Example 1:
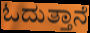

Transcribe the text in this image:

ಓದುತ್ತಾನೆ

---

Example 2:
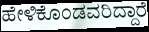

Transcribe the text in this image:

ಹೇಳಿಕೊಂಡವರಿದ್ದಾರೆ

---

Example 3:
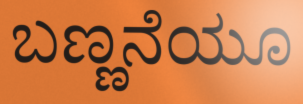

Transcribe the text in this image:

ಬಣ್ಣನೆಯೂ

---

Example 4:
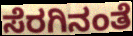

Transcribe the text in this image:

ಸೆರಗಿನಂತೆ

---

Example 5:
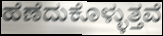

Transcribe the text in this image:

ಹೆಣೆದುಕೊಳ್ಳುತ್ತವೆ